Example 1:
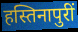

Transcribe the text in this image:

हस्तिनापुरीं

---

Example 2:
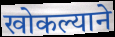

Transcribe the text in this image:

खोकल्याने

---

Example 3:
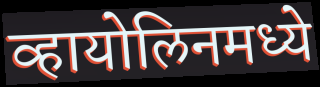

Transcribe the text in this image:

व्हायोलिनमध्ये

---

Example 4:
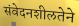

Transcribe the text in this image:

संवेदनशीलतेने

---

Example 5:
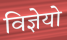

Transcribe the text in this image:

विज्ञेयो